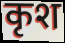
कृश